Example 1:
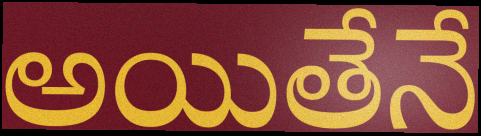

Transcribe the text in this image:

అయితేనే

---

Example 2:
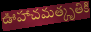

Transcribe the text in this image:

ఊహాచమత్కృతికి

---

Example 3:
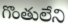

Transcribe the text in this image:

గొంతులేని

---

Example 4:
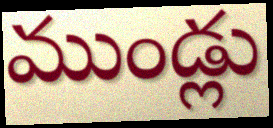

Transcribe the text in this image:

ముండ్లు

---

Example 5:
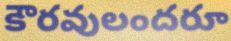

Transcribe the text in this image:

కౌరవులందరూ